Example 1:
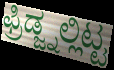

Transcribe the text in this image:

ಫ್ರಿಡ್ಜ್ನಲ್ಲಿಟ್ಟ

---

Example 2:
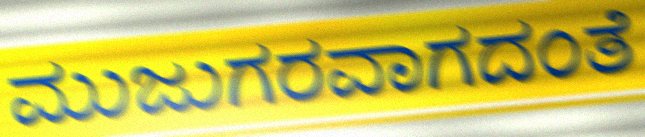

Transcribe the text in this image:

ಮುಜುಗರವಾಗದಂತೆ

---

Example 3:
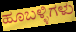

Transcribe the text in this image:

ಹೂಬಳ್ಳಿಗಳು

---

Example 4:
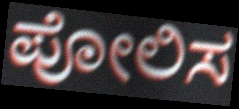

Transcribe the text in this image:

ಪೋಲಿಸ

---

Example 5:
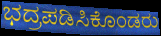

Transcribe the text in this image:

ಭದ್ರಪಡಿಸಿಕೊಂಡರು